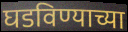
घडविण्याच्या